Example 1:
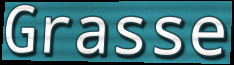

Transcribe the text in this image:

Grasse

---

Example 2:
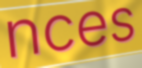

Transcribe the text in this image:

nces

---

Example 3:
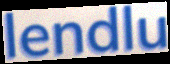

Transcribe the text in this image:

lendlu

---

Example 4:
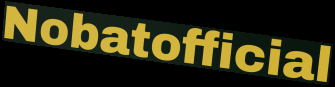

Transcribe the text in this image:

Nobatofficial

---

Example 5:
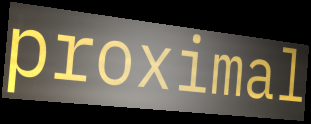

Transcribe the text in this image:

proximal